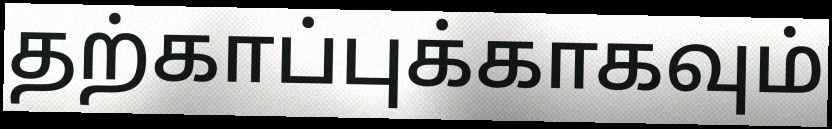
தற்காப்புக்காகவும்